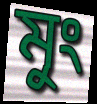
মুং